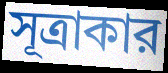
সূত্রাকার